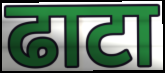
ढाटा